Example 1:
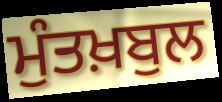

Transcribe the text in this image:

ਮੁੰਤਖ਼ਬੁਲ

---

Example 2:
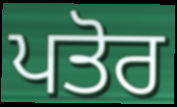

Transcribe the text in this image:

ਪਤੋਰ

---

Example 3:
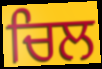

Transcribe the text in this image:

ਚਿਲ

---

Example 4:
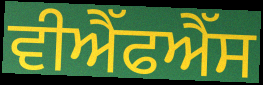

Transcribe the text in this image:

ਵੀਐੱਫਐੱਸ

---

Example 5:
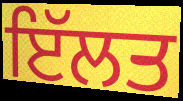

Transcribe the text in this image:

ਇੱਲਤ